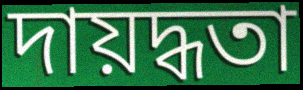
দায়দ্ধতা